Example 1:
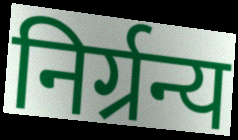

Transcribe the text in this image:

निर्ग्रन्य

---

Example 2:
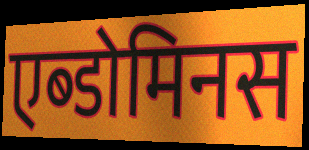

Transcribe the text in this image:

एब्डोमिनस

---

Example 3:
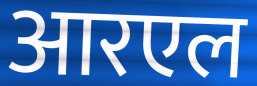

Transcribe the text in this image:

आरएल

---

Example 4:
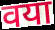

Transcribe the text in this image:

वया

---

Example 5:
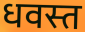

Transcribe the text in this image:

धवस्त